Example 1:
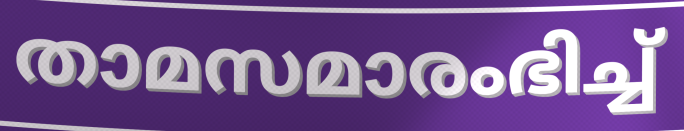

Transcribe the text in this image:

താമസമാരംഭിച്ച്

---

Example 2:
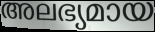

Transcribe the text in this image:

അലഭ്യമായ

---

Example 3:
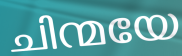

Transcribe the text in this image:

ചിന്മയേ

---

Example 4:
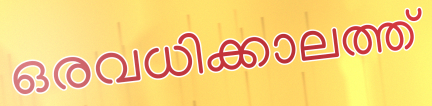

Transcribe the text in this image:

ഒരവധിക്കാലത്ത്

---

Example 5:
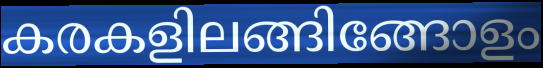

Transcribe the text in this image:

കരകളിലങ്ങിങ്ങോളം